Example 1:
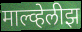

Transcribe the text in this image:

माल्व्हेलीझ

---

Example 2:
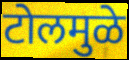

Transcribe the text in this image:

टोलमुळे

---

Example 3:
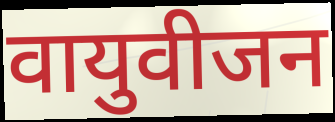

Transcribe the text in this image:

वायुवीजन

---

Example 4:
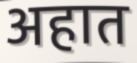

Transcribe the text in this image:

अहात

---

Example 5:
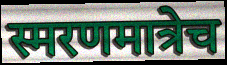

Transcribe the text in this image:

स्मरणमात्रेच